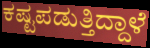
ಕಷ್ಟಪಡುತ್ತಿದ್ದಾಳೆ